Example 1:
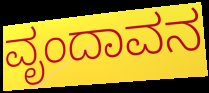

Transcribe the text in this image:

ವೃಂದಾವನ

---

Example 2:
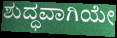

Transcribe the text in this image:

ಶುದ್ಧವಾಗಿಯೇ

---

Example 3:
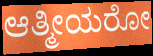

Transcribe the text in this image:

ಆತ್ಮೀಯರೋ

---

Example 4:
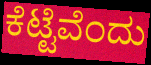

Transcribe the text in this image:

ಕೆಟ್ಟೆವೆಂದು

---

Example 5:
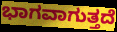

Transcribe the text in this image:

ಭಾಗವಾಗುತ್ತದೆ